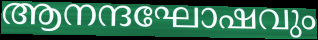
ആനന്ദഘോഷവും